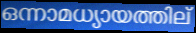
ഒന്നാമധ്യായത്തില്